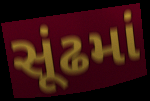
સૂંઢમાં